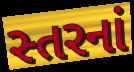
સ્તરનાં